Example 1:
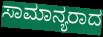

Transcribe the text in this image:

ಸಾಮಾನ್ಯರಾದ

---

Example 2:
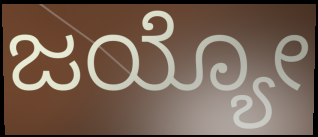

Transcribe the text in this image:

ಜಯ್ಯೋ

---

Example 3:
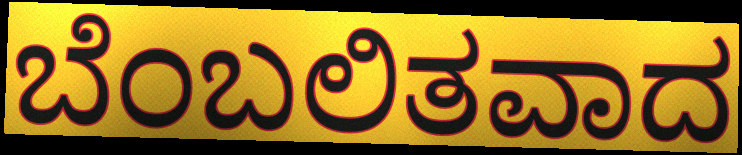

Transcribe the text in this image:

ಬೆಂಬಲಿತವಾದ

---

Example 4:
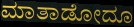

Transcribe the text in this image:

ಮಾತಾಡೋದೂ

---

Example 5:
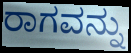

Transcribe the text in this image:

ರಾಗವನ್ನು